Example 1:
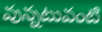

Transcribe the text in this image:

వున్నటువంటి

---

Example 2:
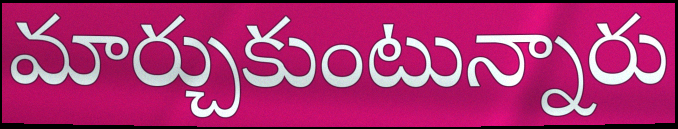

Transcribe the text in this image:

మార్చుకుంటున్నారు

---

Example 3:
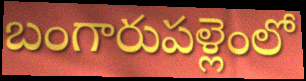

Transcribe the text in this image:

బంగారుపళ్లెంలో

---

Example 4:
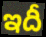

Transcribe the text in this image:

ఇదీ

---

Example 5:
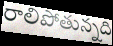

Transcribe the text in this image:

రాలిపోతున్నది